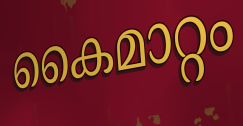
കൈമാറ്റം